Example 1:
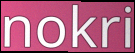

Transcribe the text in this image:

nokri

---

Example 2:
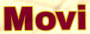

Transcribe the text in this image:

Movi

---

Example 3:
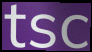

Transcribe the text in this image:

tsc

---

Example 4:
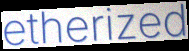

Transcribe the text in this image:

etherized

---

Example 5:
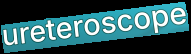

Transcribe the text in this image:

ureteroscope